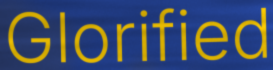
Glorified